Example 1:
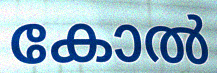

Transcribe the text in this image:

കോൽ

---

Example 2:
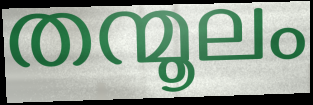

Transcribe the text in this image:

തന്മൂലം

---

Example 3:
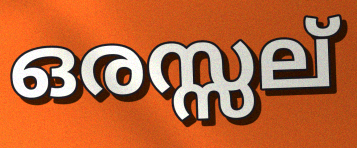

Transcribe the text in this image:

ഒരസ്സല്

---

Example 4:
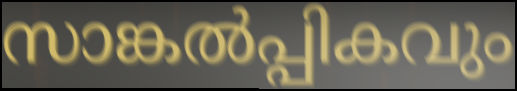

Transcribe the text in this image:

സാങ്കൽപ്പികവും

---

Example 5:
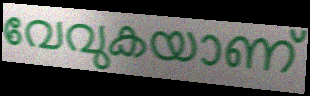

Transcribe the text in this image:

വേവുകയാണ്